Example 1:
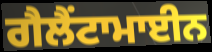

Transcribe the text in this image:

ਗੈਲੈਂਟਾਮਾਈਨ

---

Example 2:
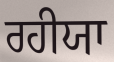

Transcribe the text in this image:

ਰਹੀਯਾ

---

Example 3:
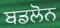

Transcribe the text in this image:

ਬਡਲੋਨ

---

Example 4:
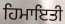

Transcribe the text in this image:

ਹਿਮਾਇਤੀ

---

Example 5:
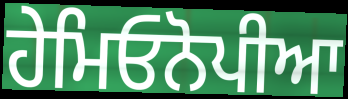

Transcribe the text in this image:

ਹੇਮਿਓਨੋਪੀਆ